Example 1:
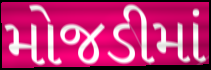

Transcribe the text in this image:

મોજડીમાં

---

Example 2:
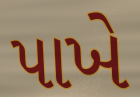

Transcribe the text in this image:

પાખે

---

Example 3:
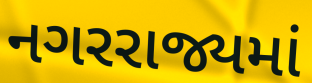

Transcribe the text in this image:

નગરરાજ્યમાં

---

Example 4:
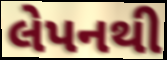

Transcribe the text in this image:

લેપનથી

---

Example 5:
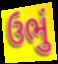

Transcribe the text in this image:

ઉભું